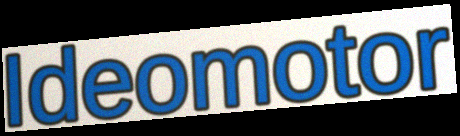
Ideomotor